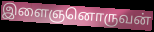
இளைஞனொருவன்